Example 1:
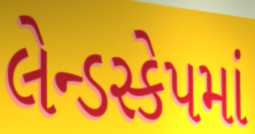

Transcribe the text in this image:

લેન્ડસ્કેપમાં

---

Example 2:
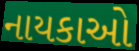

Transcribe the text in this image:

નાયકાઓ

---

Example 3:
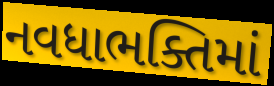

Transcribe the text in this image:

નવધાભક્તિમાં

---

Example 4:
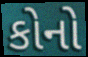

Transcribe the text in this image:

કોનો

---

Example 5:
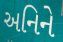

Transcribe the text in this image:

અનિને